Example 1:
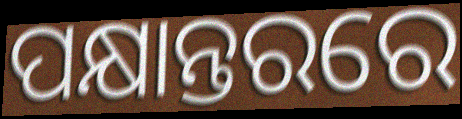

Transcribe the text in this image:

ପକ୍ଷାନ୍ତରରେ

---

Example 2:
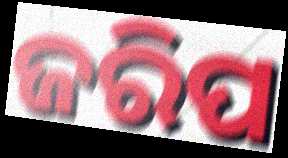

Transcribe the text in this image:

ଜରିପ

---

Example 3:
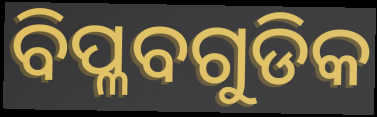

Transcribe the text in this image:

ବିପ୍ଳବଗୁଡିକ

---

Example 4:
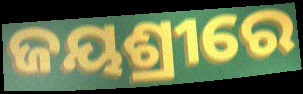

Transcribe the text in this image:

ଜୟଶ୍ରୀରେ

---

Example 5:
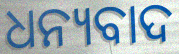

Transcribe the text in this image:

ଧନ୍ଯବାଦ